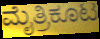
ಮೈತ್ರಿಕೂಟ